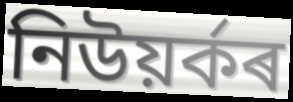
নিউয়ৰ্কৰ